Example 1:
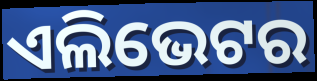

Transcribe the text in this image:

ଏଲିଭେଟର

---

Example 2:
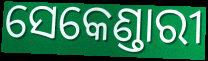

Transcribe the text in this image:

ସେକେଣ୍ଡାରୀ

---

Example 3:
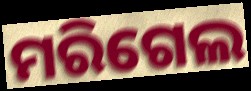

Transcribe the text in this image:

ମରିଗେଲ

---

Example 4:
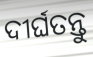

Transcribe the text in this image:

ଦୀର୍ଘତନ୍ତୁ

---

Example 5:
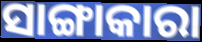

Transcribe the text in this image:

ସାଙ୍ଗାକାରା